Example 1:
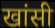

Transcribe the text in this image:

खांसी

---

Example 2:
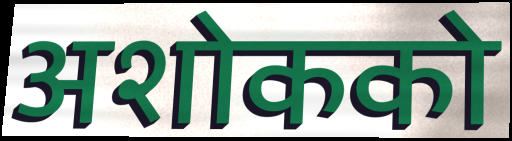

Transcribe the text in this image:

अशोकको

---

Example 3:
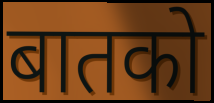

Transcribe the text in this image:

बातको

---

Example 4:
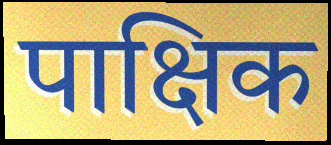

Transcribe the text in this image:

पाक्षिक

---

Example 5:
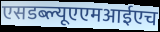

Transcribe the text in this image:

एसडब्ल्यूएएमआईएच